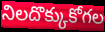
నిలదొక్కుకోగల